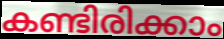
കണ്ടിരിക്കാം